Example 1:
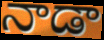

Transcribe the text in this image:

నాడా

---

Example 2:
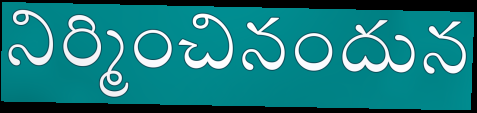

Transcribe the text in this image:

నిర్మించినందున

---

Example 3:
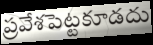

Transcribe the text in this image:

ప్రవేశపెట్టకూడదు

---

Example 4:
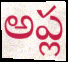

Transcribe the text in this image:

అప్ల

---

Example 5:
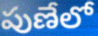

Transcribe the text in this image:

పుణేలో